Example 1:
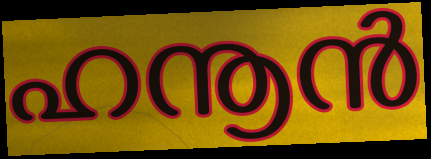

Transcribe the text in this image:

ഹനൂൻ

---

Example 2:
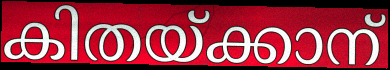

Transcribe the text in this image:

കിതയ്ക്കാന്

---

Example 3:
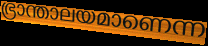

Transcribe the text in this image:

ഭ്രാന്താലയമാണെന്ന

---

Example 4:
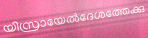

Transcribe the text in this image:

യിസ്രായേൽദേശത്തേക്കു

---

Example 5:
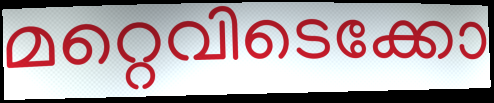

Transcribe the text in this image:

മറ്റെവിടെക്കോ